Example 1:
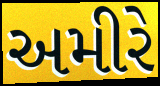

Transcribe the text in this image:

અમીરે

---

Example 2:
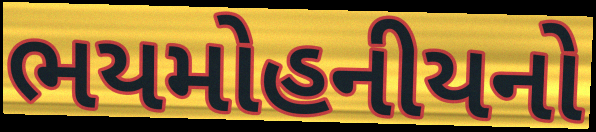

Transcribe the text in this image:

ભયમોહનીયનો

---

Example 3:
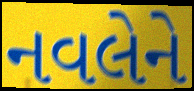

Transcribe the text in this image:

નવલેને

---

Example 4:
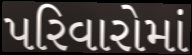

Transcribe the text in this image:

પરિવારોમાં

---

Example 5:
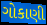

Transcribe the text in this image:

ગોકાણી